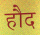
हौद